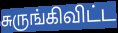
சுருங்கிவிட்ட